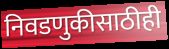
निवडणुकीसाठीही